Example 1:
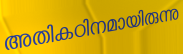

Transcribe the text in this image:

അതികഠിനമായിരുന്നു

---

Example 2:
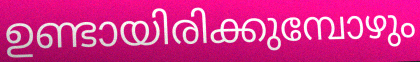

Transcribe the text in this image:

ഉണ്ടായിരിക്കുമ്പോഴും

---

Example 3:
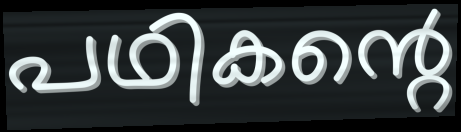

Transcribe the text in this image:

പഥികന്റെ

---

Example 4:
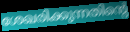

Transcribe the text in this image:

ശേഖരിക്കുന്നതിന്റെ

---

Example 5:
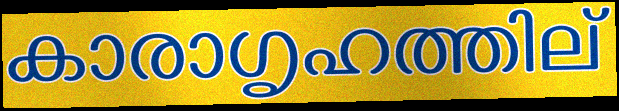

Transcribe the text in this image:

കാരാഗൃഹത്തില്